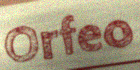
Orfeo